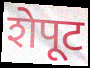
शेपूट